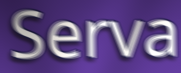
Serva